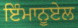
ਇੰਮਾਨੂਏਲ